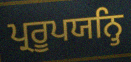
ਪ੍ਰਰੂਪਯਨ੍ਤਿ